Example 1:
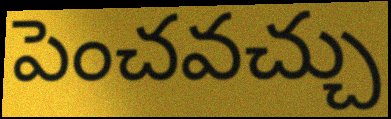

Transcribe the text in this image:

పెంచవచ్చు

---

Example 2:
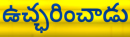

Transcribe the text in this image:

ఉచ్ఛరించాడు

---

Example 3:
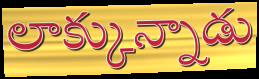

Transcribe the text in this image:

లాక్కున్నాడు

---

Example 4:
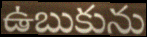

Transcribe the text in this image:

ఉబుకును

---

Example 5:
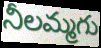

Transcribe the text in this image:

నీలమ్మగు